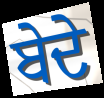
ਬੇਦੇ